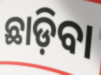
ଛାଡ଼ିବା